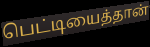
பெட்டியைத்தான்